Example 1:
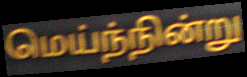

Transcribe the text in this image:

மெய்ந்நின்று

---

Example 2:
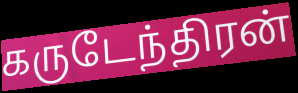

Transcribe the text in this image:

கருடேந்திரன்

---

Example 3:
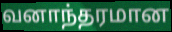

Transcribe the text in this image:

வனாந்தரமான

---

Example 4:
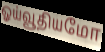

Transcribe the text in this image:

ஓய்வூதியமோ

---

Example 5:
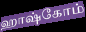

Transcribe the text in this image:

ஹாஷ்கோம்